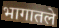
भागातले